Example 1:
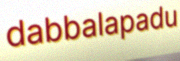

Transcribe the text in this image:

dabbalapadu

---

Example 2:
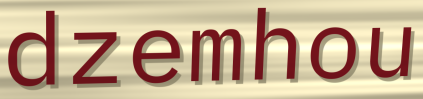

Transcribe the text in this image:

dzemhou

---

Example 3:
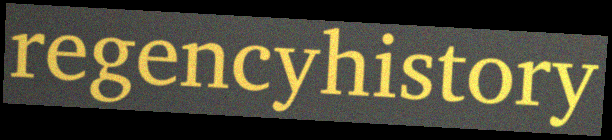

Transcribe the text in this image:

regencyhistory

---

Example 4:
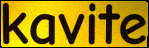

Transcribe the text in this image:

kavite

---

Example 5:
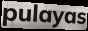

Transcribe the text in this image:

pulayas